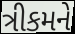
ત્રીકમને